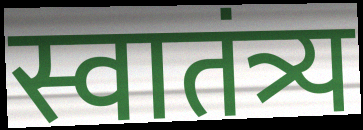
स्वातंत्र्य